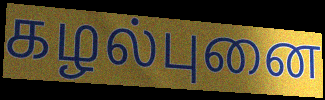
கழல்புனை